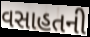
વસાહતની